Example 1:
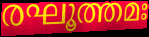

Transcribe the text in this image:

രഘൂത്തമഃ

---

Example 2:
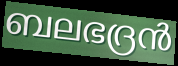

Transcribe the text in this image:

ബലഭദ്രൻ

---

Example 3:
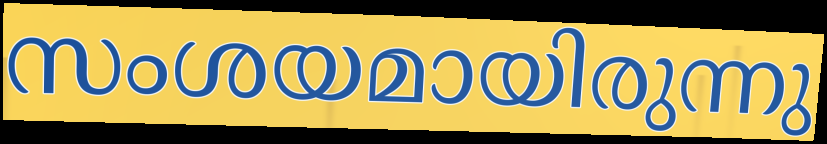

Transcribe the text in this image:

സംശയമായിരുന്നു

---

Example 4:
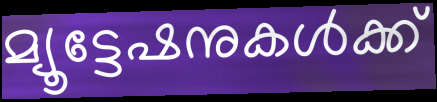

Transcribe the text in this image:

മ്യൂട്ടേഷനുകൾക്ക്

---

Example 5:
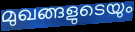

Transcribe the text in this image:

മുഖങ്ങളുടെയും